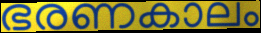
ഭരണകാലം